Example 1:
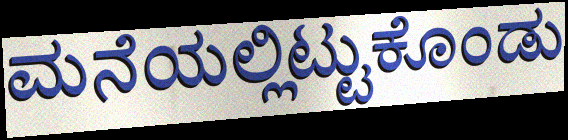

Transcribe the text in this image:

ಮನೆಯಲ್ಲಿಟ್ಟುಕೊಂಡು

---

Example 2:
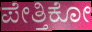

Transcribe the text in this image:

ಪೇತ್ತಿಕೋ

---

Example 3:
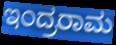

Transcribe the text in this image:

ಇಂದ್ರರಾಮ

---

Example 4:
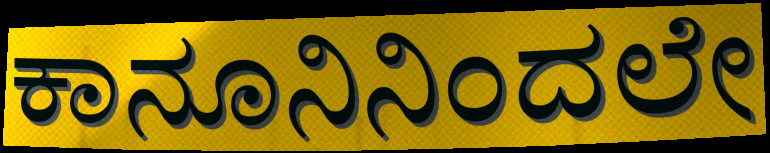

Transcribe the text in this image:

ಕಾನೂನಿನಿಂದಲೇ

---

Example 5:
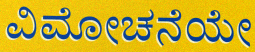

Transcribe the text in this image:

ವಿಮೋಚನೆಯೇ